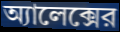
অ্যালেক্সের